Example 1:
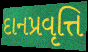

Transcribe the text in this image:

દાનપ્રવૃત્તિ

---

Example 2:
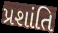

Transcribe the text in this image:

પ્રશાંતિ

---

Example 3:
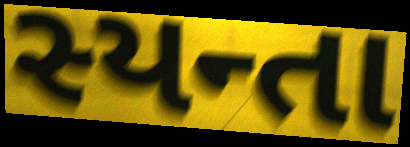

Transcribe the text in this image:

સ્યન્તા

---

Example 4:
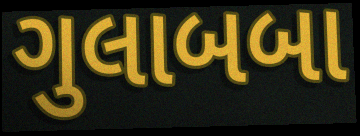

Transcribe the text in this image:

ગુલાબબા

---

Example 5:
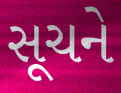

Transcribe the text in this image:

સૂચને